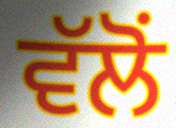
ਵੱਲੋਂ